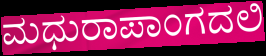
ಮಧುರಾಪಾಂಗದಲಿ